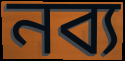
নব্য